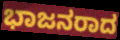
ಭಾಜನರಾದ